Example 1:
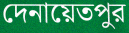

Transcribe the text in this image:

দেনায়েতপুর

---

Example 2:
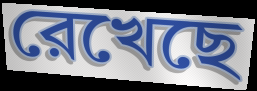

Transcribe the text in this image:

রেখেছে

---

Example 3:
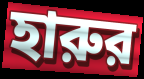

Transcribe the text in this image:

হারুর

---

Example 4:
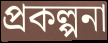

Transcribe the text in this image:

প্রকল্পনা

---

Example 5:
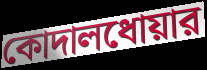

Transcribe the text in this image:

কোদালধোয়ার